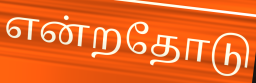
என்றதோடு